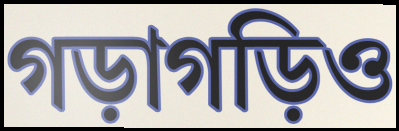
গড়াগড়িও